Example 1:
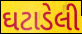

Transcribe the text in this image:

ઘટાડેલી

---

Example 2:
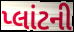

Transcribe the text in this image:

પ્લાંટની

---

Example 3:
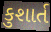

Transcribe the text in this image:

કુશાર્ત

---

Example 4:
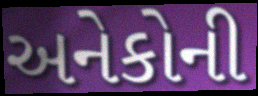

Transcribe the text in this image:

અનેકોની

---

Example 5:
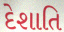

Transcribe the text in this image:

દેશાતિ